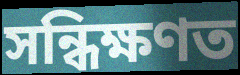
সন্ধিক্ষণত